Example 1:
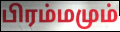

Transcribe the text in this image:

பிரம்மமும்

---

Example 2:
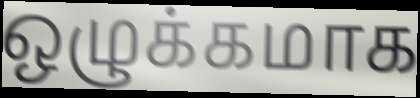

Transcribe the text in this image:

ஒழுக்கமாக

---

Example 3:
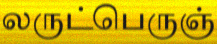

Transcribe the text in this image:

லருட்பெருஞ்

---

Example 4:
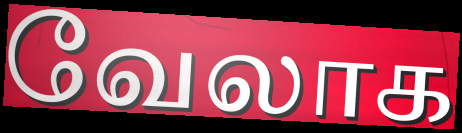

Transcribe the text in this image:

வேலாக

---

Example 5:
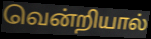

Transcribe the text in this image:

வென்றியால்